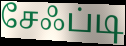
சேஃப்டி